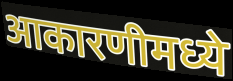
आकारणीमध्ये